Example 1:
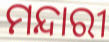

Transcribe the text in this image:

ମନ୍ଦାରୀ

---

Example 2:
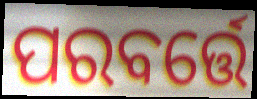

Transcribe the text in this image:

ପରବର୍ତ୍ତେ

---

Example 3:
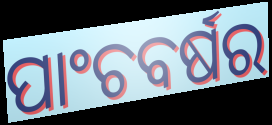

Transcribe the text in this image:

ପାଂଚବର୍ଷର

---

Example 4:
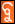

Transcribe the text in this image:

ବୁ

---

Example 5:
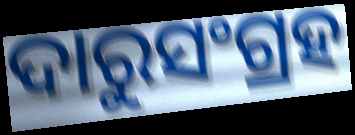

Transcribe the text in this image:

ଦାରୁସଂଗ୍ରହ